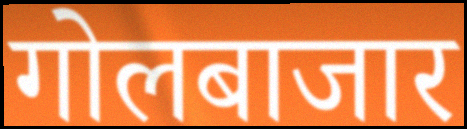
गोलबाजार